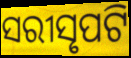
ସରୀସୃପଟି